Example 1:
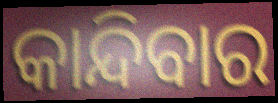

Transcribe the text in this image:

କାନ୍ଦିବାର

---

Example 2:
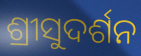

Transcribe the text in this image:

ଶ୍ରୀସୁଦର୍ଶନ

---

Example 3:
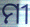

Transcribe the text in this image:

ମୀ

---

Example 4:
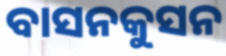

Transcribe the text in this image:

ବାସନକୁସନ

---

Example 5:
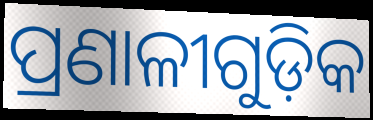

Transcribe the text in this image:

ପ୍ରଣାଳୀଗୁଡ଼ିକ